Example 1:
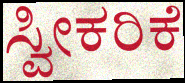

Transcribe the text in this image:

ಸ್ವೀಕರಿಕೆ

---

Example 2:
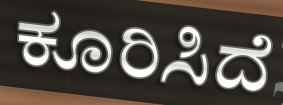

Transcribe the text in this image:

ಕೂರಿಸಿದೆ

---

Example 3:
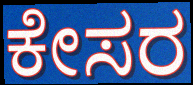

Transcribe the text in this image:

ಕೇಸರ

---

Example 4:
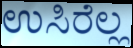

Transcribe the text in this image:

ಉಸಿರೆಲ್ಲ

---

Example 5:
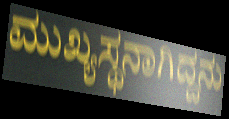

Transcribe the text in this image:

ಮುಖ್ಯಸ್ಥನಾಗಿದ್ದನು